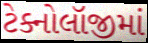
ટેક્નોલૉજીમાં